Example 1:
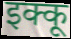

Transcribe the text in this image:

इक्कू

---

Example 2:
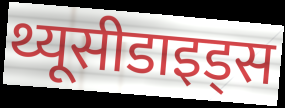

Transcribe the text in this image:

थ्यूसीडाइड्स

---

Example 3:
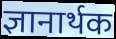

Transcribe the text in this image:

ज्ञानार्थक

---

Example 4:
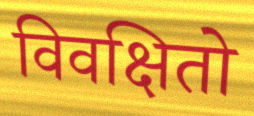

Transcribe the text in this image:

विवक्षितो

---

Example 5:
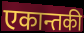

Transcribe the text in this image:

एकान्तकी